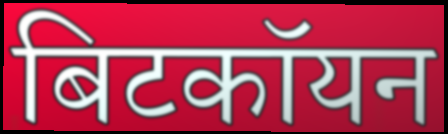
बिटकॉयन